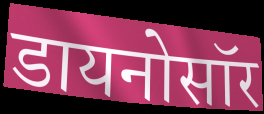
डायनोसॉर